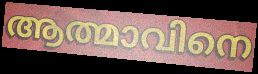
ആത്മാവിനെ